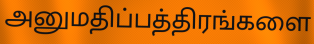
அனுமதிப்பத்திரங்களை